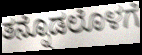
ತನ್ನೊಡಲೊಳಗೆ